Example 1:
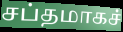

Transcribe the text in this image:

சப்தமாகச்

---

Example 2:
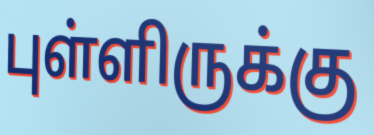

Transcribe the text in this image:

புள்ளிருக்கு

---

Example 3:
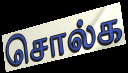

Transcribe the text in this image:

சொல்க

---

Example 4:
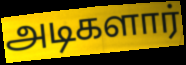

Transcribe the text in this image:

அடிகளார்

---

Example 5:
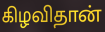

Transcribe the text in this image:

கிழவிதான்